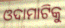
ଓଦାମାଟିକୁ